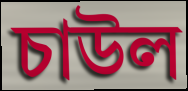
চাউল